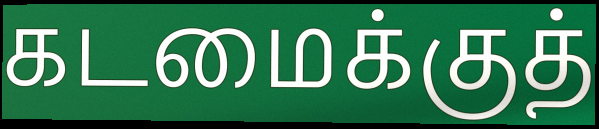
கடமைக்குத்